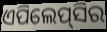
ଏପିଲେପ୍‌ସିର